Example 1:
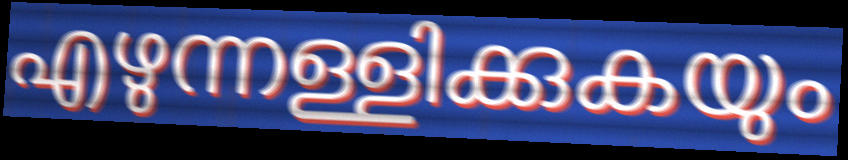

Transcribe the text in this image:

എഴുന്നള്ളിക്കുകയും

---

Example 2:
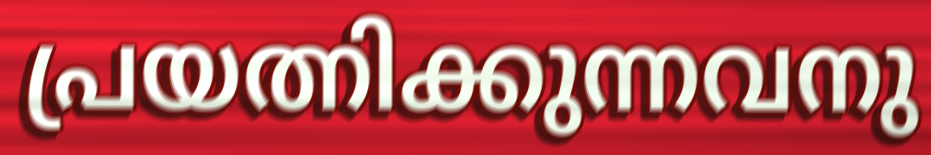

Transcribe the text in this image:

പ്രയത്നിക്കുന്നവനു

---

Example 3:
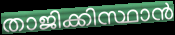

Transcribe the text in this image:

താജിക്കിസ്ഥാൻ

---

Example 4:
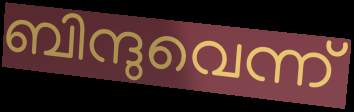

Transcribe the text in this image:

ബിന്ദുവെന്ന്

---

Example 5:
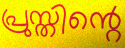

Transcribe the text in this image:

പ്രുസ്തിന്റെ